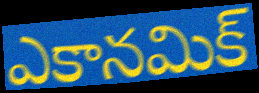
ఎకానమిక్